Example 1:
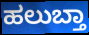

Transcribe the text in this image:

ಹಲುಬ್ತಾ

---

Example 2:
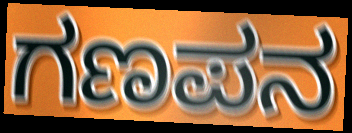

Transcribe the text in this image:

ಗಣಪನ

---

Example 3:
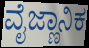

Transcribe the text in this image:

ವೈಜ್ಣಾನಿಕ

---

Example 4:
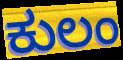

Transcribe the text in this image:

ಕುಲಂ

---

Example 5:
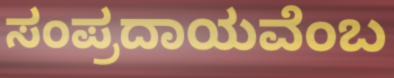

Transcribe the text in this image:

ಸಂಪ್ರದಾಯವೆಂಬ